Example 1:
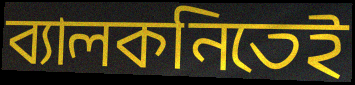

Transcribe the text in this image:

ব্যালকনিতেই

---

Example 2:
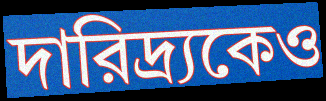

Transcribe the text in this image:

দারিদ্র্যকেও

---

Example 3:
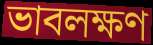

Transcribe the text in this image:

ভাবলক্ষণ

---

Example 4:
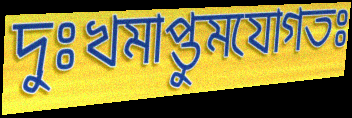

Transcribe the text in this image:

দুঃখমাপ্তুমযোগতঃ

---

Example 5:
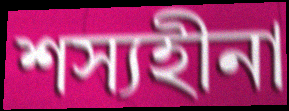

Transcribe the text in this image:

শস্যহীনা